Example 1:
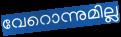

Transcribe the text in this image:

വേറൊന്നുമില്ല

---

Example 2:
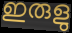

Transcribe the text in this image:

ഇരുളു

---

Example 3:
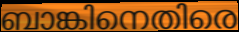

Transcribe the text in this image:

ബാങ്കിനെതിരെ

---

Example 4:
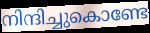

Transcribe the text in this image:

നിന്ദിച്ചുകൊണ്ടേ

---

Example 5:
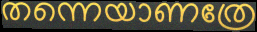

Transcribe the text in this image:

തന്നെയാണത്രേ